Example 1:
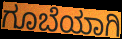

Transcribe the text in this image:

ಗೂಬೆಯಾಗಿ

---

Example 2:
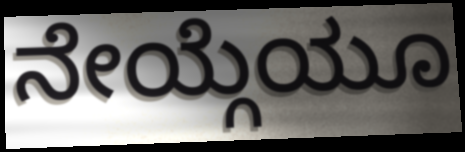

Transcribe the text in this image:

ನೇಯ್ಗೆಯೂ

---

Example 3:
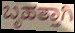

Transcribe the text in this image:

ಬೃಹತ್ತಾಗಿ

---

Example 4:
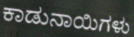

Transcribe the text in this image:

ಕಾಡುನಾಯಿಗಳು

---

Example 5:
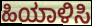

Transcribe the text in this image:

ಹಿಯಾಳಿಸಿ